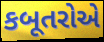
કબૂતરોએ